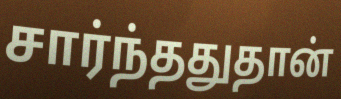
சார்ந்ததுதான்